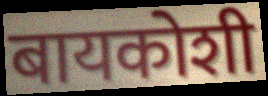
बायकोशी